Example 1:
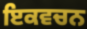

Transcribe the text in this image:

ਇਕਵਚਨ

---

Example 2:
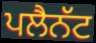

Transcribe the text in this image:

ਪਲੈਨੱਟ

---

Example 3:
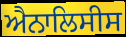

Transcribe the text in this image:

ਐਨਾਲਿਸੀਸ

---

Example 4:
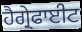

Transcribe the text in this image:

ਹੈਗ੍ਰੇਫਾਈਟ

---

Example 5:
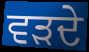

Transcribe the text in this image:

ਵੜਦੇ